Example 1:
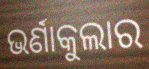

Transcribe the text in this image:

ଭର୍ଣାକୁଲାର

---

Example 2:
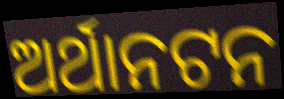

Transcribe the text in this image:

ଅର୍ଥାନଟନ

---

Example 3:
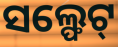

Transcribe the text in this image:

ସଲ୍ଫେଟ୍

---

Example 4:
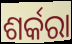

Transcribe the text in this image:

ଶର୍କରା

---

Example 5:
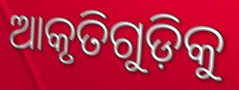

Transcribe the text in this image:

ଆକୃତିଗୁଡ଼ିକୁ